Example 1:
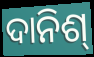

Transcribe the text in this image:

ଦାନିଶ୍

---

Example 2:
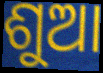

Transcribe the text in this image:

ଶୁଆ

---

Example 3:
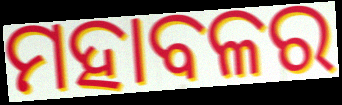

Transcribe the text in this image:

ମହାବଳର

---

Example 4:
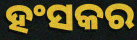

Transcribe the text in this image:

ହଂସକର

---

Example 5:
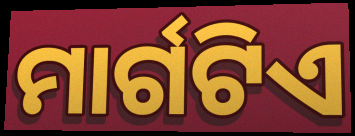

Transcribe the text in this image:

ମାର୍ଗଟିଏ